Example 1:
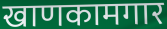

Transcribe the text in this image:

खाणकामगार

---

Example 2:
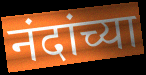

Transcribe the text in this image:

नंदांच्या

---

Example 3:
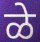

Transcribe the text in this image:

ळे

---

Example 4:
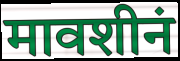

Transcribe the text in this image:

मावशीनं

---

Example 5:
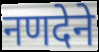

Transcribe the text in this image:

नणदेने